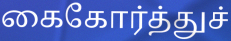
கைகோர்த்துச்